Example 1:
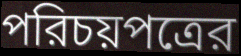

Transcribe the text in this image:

পরিচয়পত্রের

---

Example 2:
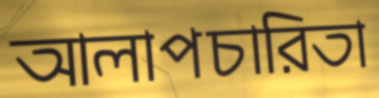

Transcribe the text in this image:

আলাপচারিতা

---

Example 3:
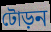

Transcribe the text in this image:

টোড়ন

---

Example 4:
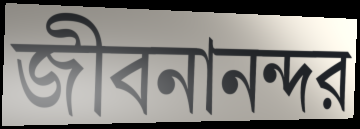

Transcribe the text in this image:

জীবনানন্দর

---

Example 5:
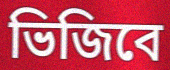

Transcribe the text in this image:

ভিজিবে